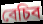
বেচিব